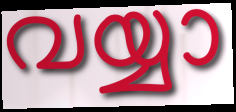
വയ്യാ